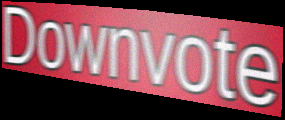
Downvote